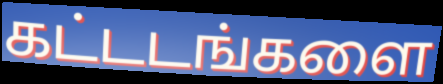
கட்டடங்களை